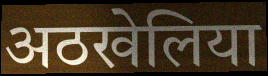
अठखेलिया